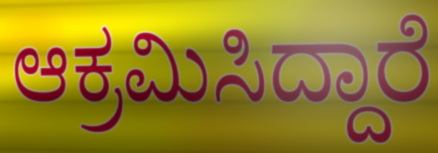
ಆಕ್ರಮಿಸಿದ್ದಾರೆ